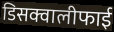
डिसक्वालीफाई